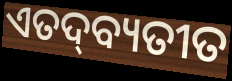
ଏତଦ୍‌ବ୍ୟତୀତ